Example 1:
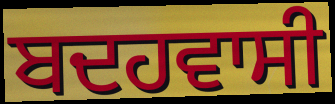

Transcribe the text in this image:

ਬਦਹਵਾਸੀ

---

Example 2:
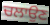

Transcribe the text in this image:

ਚਲਾਉਣ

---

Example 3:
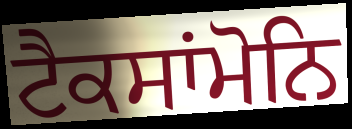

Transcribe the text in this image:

ਟੈਕਸਾਂਮੋਨਿ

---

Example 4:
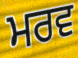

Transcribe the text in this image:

ਮਰਵ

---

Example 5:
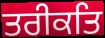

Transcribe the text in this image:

ਤਰੀਕਤਿ